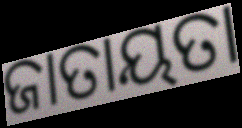
ଜାତାୟତା